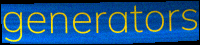
generators